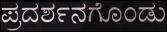
ಪ್ರದರ್ಶನಗೊಂಡು